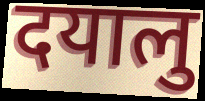
दयालु